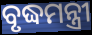
ବୃଦ୍ଧମନ୍ତ୍ରୀ